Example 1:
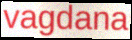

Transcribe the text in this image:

vagdana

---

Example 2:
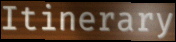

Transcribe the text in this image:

Itinerary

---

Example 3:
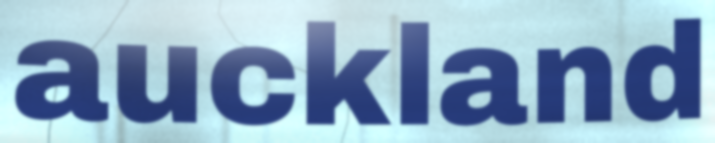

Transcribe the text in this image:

auckland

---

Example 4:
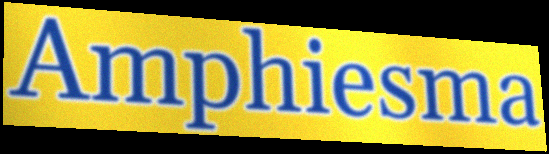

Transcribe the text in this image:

Amphiesma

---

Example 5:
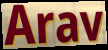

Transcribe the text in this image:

Arav